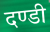
दण्डी